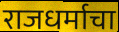
राजधर्माचा